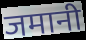
जमानी